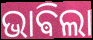
ଭାଵିଲା